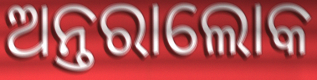
ଅନ୍ତରାଲୋକ